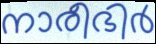
നാരീഭിർ